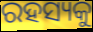
ରହସ୍ୟକୁ